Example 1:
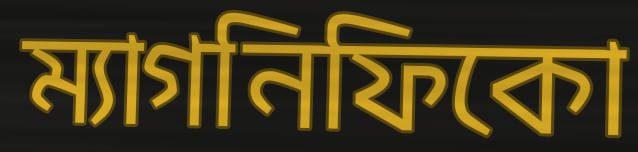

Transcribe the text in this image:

ম্যাগনিফিকো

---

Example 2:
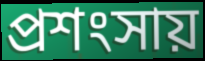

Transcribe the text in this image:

প্রশংসায়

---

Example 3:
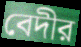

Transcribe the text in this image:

বেদীর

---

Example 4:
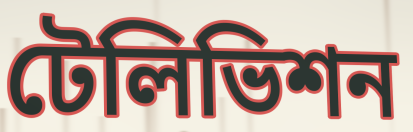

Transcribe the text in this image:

টেলিভিশন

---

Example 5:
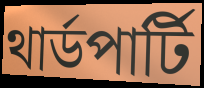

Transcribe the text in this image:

থার্ডপার্টি